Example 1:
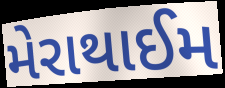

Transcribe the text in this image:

મેરાથાઈમ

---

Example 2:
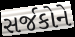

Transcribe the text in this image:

સર્જકોને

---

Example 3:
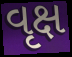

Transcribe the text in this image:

વૃક્ષ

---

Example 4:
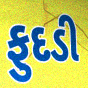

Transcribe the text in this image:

ફુદડી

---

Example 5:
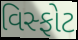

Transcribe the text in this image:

વિસ્ફોટ